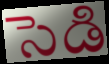
సెడి